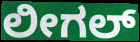
ಲೀಗಲ್